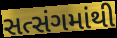
સત્સંગમાંથી